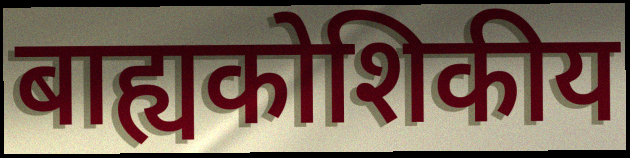
बाह्यकोशिकीय